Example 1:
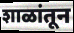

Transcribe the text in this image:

शाळांतून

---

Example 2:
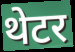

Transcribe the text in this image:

थेटर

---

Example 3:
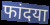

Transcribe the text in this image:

फांदया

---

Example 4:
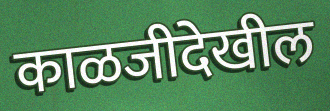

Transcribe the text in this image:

काळजीदेखील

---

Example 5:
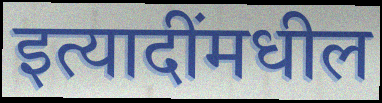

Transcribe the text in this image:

इत्यादींमधील